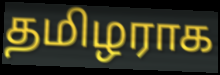
தமிழராக